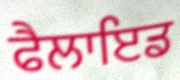
ਫੈਲਾਇਡ